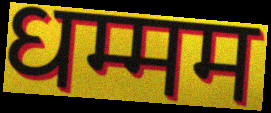
धम्मम